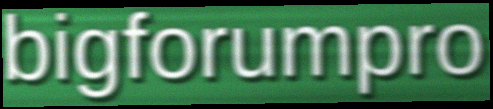
bigforumpro